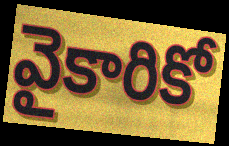
వైకారికో